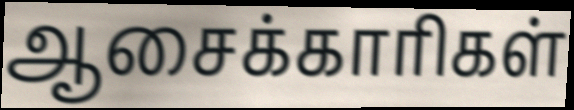
ஆசைக்காரிகள்